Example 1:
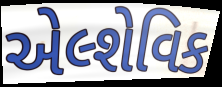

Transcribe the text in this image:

એલ્શેવિક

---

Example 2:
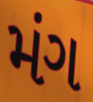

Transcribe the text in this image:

મંગ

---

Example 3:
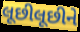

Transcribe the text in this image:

લૂછીલૂછીને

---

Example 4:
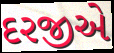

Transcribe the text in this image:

દરજીએ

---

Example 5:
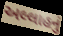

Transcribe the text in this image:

અલ્લાહનું